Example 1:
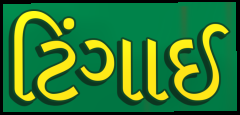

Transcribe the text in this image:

ટિંગાઈ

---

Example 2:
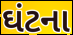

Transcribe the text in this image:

ઘંટના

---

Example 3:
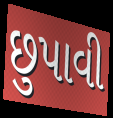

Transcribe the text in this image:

છુપાવી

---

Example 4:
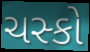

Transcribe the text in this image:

ચસ્કો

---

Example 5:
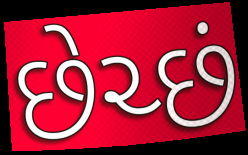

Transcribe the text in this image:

છેચ્છં